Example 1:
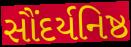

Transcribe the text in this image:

સૌંદર્યનિષ્ઠ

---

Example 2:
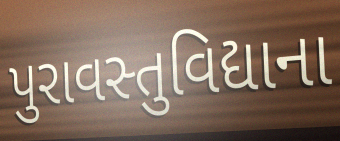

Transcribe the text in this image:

પુરાવસ્તુવિદ્યાના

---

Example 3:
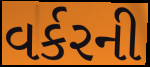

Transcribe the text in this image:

વર્કરની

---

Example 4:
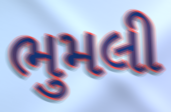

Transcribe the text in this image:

ભુમલી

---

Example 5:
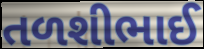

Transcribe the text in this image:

તળશીભાઈ